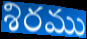
శిరము